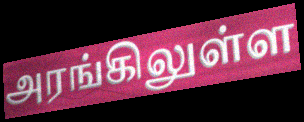
அரங்கிலுள்ள